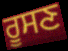
ਰੂਸਣ